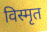
विस्मृत